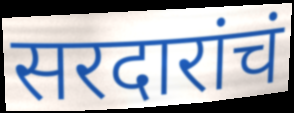
सरदारांचं